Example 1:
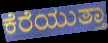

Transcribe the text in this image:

ಕೆರೆಯುತ್ತಾ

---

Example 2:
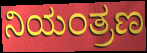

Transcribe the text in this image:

ನಿಯಂತ್ರಣ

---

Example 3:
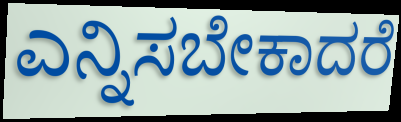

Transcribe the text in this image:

ಎನ್ನಿಸಬೇಕಾದರೆ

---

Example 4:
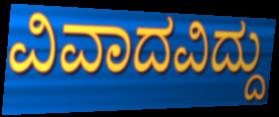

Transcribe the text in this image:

ವಿವಾದವಿದ್ದು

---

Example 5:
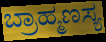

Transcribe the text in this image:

ಬ್ರಾಹ್ಮಣಸ್ಯ